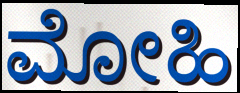
ಮೋಹಿ